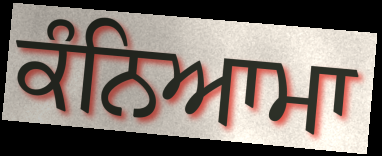
ਕੰਨਿਆਮਾ